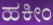
ಹಕೀಂ